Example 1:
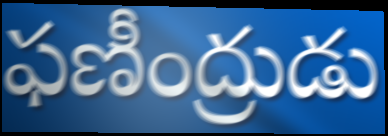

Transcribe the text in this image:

ఫణీంద్రుడు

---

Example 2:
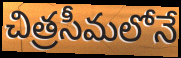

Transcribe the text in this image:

చిత్రసీమలోనే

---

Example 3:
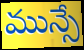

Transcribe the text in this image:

మున్సే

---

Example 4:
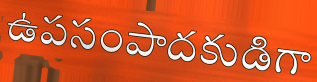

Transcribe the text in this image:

ఉపసంపాదకుడిగా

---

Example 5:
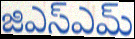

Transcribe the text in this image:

జిఎస్ఎమ్